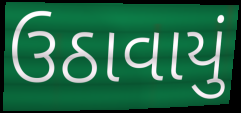
ઉઠાવાયું